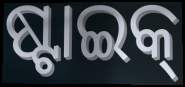
ଷ୍ଟାଇକ୍